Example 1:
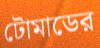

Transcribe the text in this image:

টোমাডের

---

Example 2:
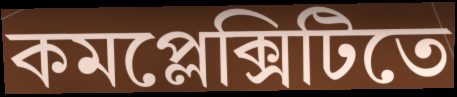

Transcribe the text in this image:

কমপ্লেক্সিটিতে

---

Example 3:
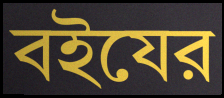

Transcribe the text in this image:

বইযের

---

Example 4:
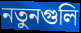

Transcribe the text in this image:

নতুনগুলি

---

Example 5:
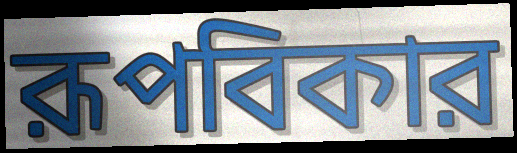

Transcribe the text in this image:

রূপবিকার